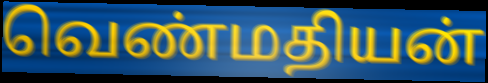
வெண்மதியன்